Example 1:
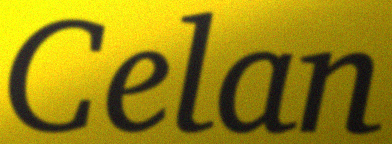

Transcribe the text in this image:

Celan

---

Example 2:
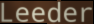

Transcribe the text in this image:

Leeder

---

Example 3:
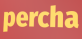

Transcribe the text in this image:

percha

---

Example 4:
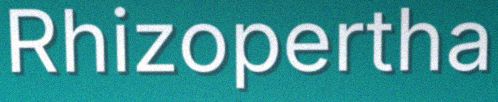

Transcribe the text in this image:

Rhizopertha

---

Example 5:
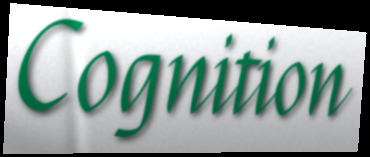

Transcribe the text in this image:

Cognition